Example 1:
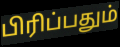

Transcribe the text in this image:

பிரிப்பதும்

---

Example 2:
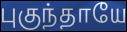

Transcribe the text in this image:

புகுந்தாயே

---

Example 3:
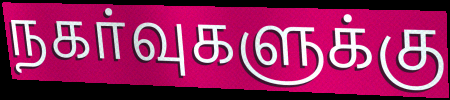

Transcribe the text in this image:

நகர்வுகளுக்கு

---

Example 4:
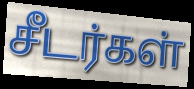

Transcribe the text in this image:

சீடர்கள்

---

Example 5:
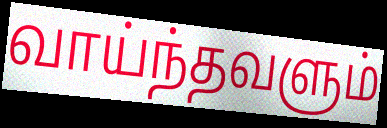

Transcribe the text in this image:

வாய்ந்தவளும்